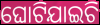
ଘୋଟିଯାଇଚି